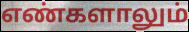
எண்களாலும்